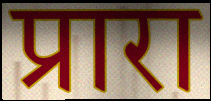
प्रारा